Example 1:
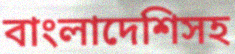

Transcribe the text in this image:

বাংলাদেশিসহ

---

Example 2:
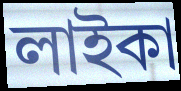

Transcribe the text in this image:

লাইকা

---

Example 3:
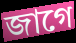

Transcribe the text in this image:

জাগে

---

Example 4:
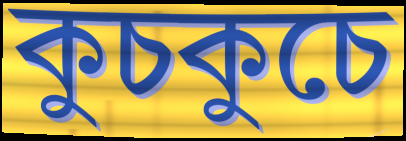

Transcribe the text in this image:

কুচকুচে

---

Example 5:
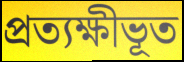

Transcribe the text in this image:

প্রত্যক্ষীভূত